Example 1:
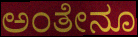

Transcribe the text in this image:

ಅಂತೇನೂ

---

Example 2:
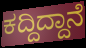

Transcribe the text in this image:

ಕದ್ದಿದ್ದಾನೆ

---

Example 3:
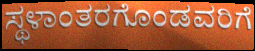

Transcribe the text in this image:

ಸ್ಥಳಾಂತರಗೊಂಡವರಿಗೆ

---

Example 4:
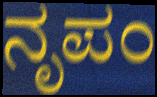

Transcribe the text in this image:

ನೃಪಂ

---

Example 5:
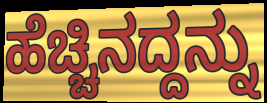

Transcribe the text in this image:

ಹೆಚ್ಚಿನದ್ದನ್ನು